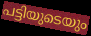
പട്ടിയുടെയും